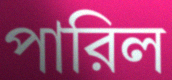
পারিল